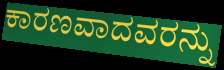
ಕಾರಣವಾದವರನ್ನು